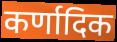
कर्णादिक